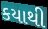
કયાથી